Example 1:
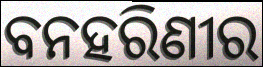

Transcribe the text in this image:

ବନହରିଣୀର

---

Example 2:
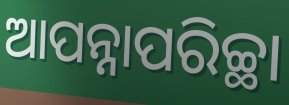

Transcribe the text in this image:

ଆପନ୍ନାପରିଚ୍ଛା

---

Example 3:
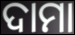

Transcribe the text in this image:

ଦାମା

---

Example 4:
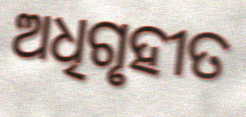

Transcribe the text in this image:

ଅଧିଗୃହୀତ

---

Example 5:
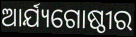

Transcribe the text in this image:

ଆର୍ଯ୍ୟଗୋଷ୍ଠୀର